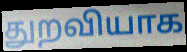
துறவியாக